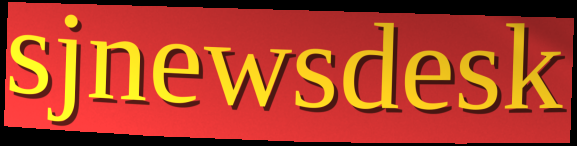
sjnewsdesk